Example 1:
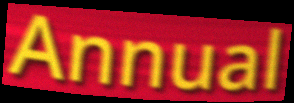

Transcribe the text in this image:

Annual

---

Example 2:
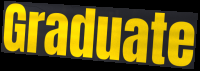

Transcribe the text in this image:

Graduate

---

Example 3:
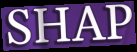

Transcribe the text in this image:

SHAP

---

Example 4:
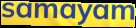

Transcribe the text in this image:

samayam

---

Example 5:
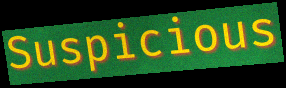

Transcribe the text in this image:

Suspicious